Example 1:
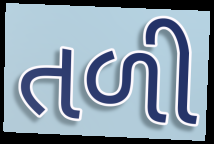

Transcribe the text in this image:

તળી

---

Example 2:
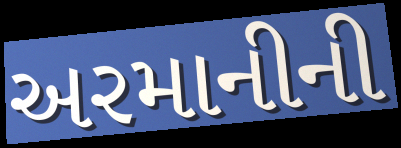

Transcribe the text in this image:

અરમાનીની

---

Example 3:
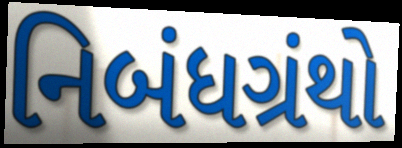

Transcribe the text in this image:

નિબંધગ્રંથો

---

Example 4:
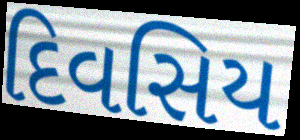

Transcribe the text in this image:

દિવસિય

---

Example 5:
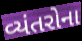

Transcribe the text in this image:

વ્યંતરોના